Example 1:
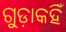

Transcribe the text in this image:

ଗୁଡ଼ାକହିଁ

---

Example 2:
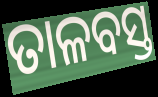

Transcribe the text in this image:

ତାଳବସ୍ତ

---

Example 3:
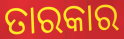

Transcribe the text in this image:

ତାରକାର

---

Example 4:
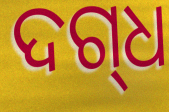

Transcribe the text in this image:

ଦଗ୍‌ଧ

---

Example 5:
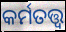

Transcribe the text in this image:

କର୍ମତତ୍ତ୍ୱ